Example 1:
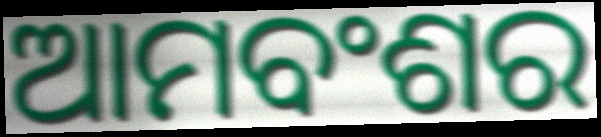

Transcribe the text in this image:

ଆମବଂଶର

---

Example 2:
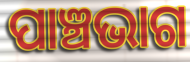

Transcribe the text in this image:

ପାଞ୍ଚଭାଗ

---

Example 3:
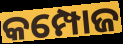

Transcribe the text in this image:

କମ୍ପୋଜ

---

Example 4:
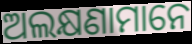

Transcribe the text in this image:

ଅଲକ୍ଷଣାମାନେ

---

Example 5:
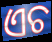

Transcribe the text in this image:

ଏଚ